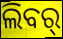
ଲିବର୍